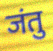
जंतु